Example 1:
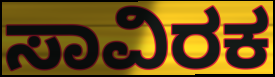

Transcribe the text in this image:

ಸಾವಿರಕ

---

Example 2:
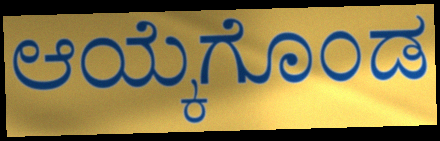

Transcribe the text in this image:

ಆಯ್ಕೆಗೊಂಡ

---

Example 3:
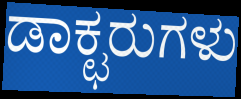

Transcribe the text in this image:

ಡಾಕ್ಟರುಗಳು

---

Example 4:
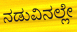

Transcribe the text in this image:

ನಡುವಿನಲ್ಲೇ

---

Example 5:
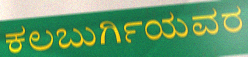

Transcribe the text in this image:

ಕಲಬುರ್ಗಿಯವರ